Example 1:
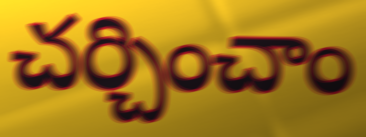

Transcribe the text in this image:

చర్చించాం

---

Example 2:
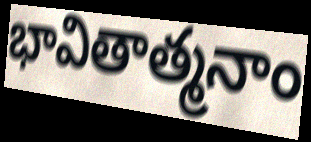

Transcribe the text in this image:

భావితాత్మనాం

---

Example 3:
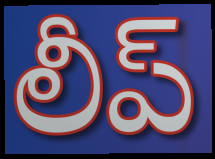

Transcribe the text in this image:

లీప్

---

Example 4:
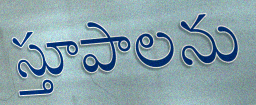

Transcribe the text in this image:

స్తూపాలను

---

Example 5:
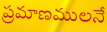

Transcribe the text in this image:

ప్రమాణములనే